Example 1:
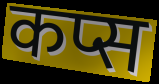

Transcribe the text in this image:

कप्स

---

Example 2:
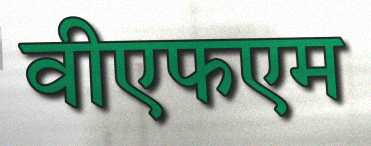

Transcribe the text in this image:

वीएफएम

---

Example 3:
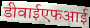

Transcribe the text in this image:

डीवाईएफआई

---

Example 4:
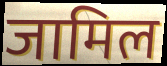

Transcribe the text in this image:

जामिल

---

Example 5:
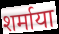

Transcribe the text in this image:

शर्माया